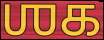
ஶக